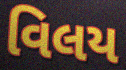
વિલય